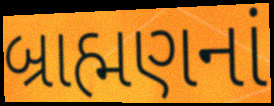
બ્રાહ્મણનાં